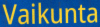
Vaikunta